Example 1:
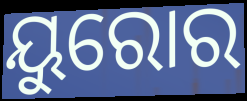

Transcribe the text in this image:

ୟୁରୋର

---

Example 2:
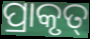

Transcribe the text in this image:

ପ୍ରାକୃତ୍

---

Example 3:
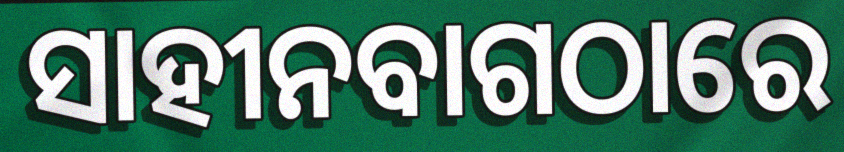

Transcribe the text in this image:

ସାହୀନବାଗଠାରେ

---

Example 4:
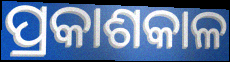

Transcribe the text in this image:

ପ୍ରକାଶକାଳ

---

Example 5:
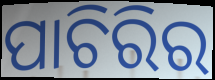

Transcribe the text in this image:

ପାଚିରିର